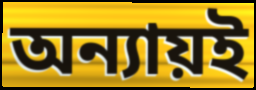
অন্যায়ই